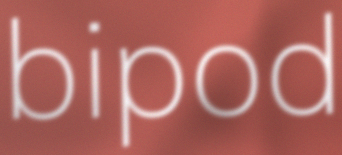
bipod